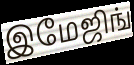
இமேஜிங்